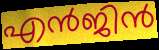
എൻജിൻ